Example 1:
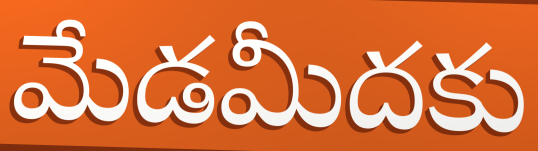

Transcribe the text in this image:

మేడమీదకు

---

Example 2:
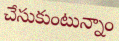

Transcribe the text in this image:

చేసుకుంటున్నాం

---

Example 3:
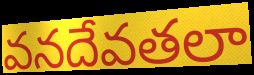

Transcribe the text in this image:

వనదేవతలా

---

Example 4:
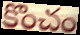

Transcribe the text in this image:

కొంచం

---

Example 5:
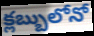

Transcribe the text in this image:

క్లబ్బులోనో